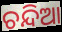
ଚନ୍ଦିଆ